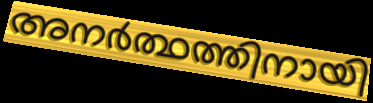
അനർത്ഥത്തിനായി